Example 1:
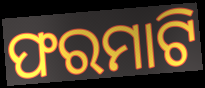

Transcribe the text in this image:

ଫରମାଟି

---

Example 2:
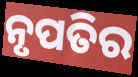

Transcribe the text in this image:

ନୃପତିର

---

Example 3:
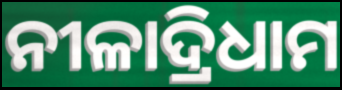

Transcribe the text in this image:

ନୀଳାଦ୍ରିଧାମ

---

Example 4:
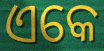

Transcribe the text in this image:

ଏକେ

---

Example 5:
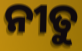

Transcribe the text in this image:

ନୀତୁ